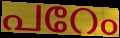
പറേം